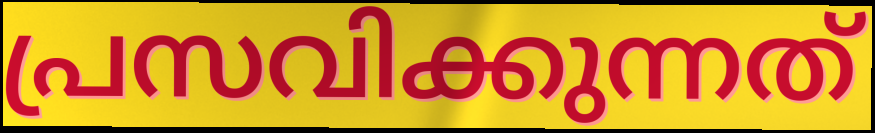
പ്രസവിക്കുന്നത്